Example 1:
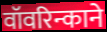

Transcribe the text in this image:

वॉवरिन्काने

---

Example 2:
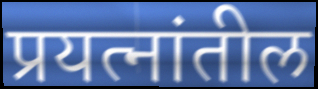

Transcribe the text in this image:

प्रयत्नांतील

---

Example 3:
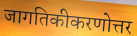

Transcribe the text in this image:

जागतिकीकरणोत्तर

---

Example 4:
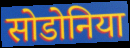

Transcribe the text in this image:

सोडोनिया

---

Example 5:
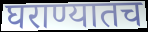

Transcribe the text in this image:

घराण्यातच